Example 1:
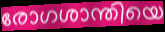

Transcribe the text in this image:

രോഗശാന്തിയെ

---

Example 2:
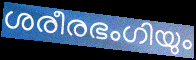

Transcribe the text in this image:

ശരീരഭംഗിയും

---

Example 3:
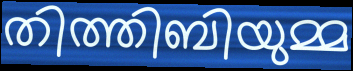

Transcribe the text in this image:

തിത്തിബിയുമ്മ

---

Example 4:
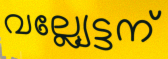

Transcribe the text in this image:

വല്ല്യേട്ടന്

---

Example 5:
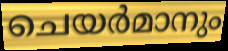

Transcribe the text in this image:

ചെയർമാനും